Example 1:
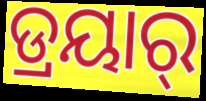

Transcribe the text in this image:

ଡ୍ରୟାର୍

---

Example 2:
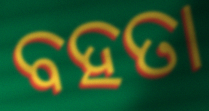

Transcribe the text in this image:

ବହତା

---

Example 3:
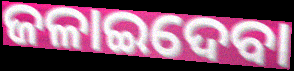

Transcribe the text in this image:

ଜଳାଇଦେବା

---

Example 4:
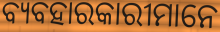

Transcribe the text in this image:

ବ୍ୟବହାରକାରୀମାନେ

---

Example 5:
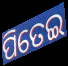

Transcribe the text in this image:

ପିତେଇ